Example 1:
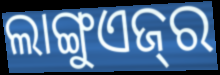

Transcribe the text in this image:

ଲାଙ୍ଗୁଏଜ୍‌ର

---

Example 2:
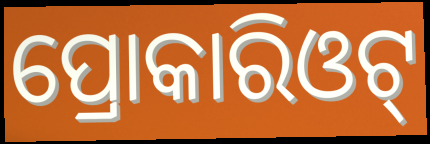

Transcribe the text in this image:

ପ୍ରୋକାରିଓଟ୍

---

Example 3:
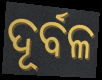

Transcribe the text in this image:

ଦୂର୍ବଳ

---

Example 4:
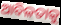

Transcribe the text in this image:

ଆବିଳତାକୁ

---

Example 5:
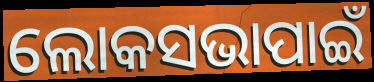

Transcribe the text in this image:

ଲୋକସଭାପାଇଁ